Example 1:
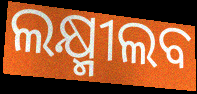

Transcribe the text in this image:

ଲକ୍ଷ୍ମୀଲବ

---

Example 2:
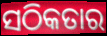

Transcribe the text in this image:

ସଠିକତାର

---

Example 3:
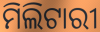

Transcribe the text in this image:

ମିଲିଟାରୀ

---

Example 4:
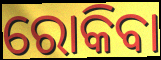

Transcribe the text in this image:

ରୋକିବା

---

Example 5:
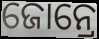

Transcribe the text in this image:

ଜୋନ୍ରେ